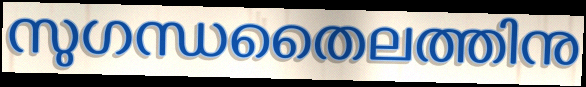
സുഗന്ധതൈലത്തിനു